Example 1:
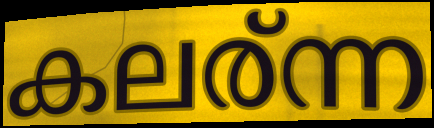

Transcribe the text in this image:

കലര്ന്ന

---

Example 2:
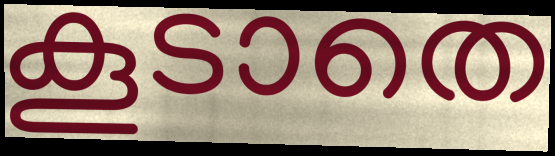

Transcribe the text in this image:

കൂടാതെ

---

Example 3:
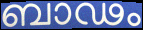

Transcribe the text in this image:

ബാഢം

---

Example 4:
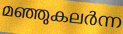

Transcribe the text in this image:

മഞ്ഞുകലർന്ന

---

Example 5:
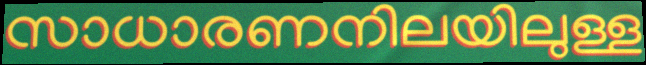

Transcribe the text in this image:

സാധാരണനിലയിലുള്ള